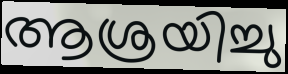
ആശ്രയിച്ചു